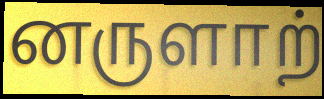
னருளாற்